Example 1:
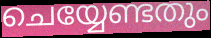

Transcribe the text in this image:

ചെയ്യേണ്ടതും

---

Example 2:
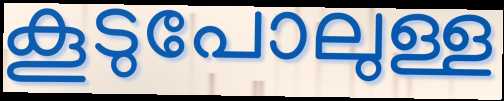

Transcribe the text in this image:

കൂടുപോലുള്ള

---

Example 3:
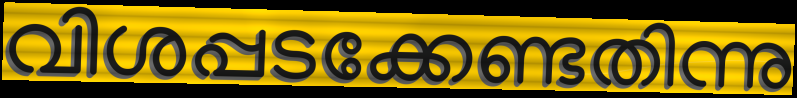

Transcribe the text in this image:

വിശപ്പടക്കേണ്ടതിന്നു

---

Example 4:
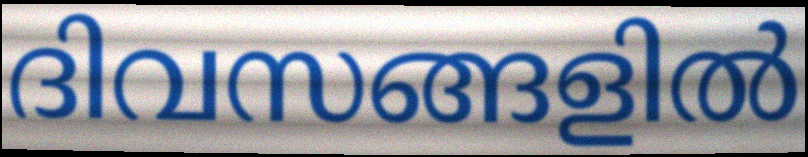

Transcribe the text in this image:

ദിവസങ്ങളിൽ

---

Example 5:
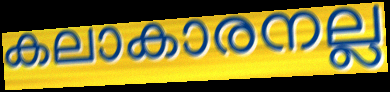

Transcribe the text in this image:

കലാകാരനല്ല